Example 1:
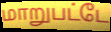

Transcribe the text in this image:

மாறுபட்டே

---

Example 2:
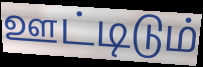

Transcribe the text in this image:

ஊட்டிடும்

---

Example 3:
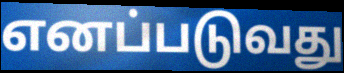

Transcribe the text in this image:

எனப்படுவது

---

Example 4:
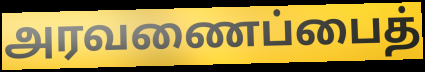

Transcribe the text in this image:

அரவணைப்பைத்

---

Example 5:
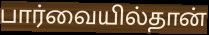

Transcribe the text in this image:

பார்வையில்தான்